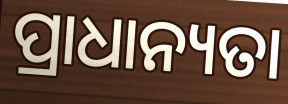
ପ୍ରାଧାନ୍ୟତା